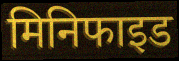
मिनिफाइड